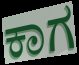
ಕಾಗ